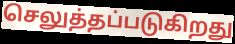
செலுத்தப்படுகிறது